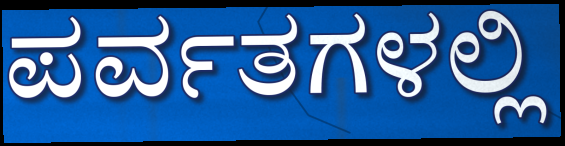
ಪರ್ವತಗಳಲ್ಲಿ